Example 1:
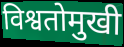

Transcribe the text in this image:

विश्वतोमुखी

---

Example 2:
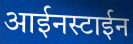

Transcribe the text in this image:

आईनस्टाईन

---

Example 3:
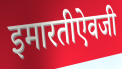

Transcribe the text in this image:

इमारतीऐवजी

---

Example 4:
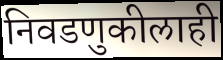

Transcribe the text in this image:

निवडणुकीलाही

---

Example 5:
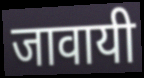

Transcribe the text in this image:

जावायी